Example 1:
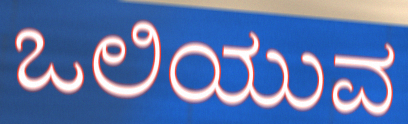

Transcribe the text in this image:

ಒಲಿಯುವ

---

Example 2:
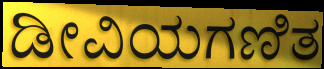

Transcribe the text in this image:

ಡೀವಿಯಗಣಿತ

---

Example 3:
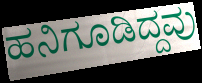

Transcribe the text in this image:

ಹನಿಗೂಡಿದ್ದವು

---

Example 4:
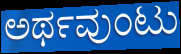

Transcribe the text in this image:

ಅರ್ಥವುಂಟು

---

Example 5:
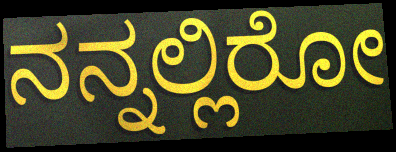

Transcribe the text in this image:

ನನ್ನಲ್ಲಿರೋ